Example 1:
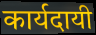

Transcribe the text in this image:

कार्यदायी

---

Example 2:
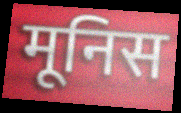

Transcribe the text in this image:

मूनिस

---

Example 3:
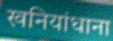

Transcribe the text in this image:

खनियांधाना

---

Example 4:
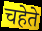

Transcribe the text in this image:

चहेते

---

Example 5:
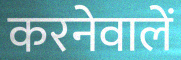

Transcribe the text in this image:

करनेवालें